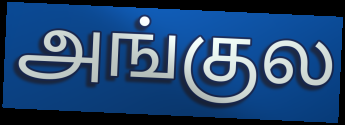
அங்குல